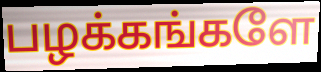
பழக்கங்களே